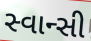
સ્વાન્સી